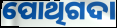
ପୋଥିଗଦା